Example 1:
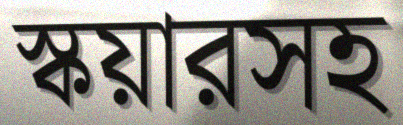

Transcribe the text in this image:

স্কয়ারসহ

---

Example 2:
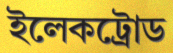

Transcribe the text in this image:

ইলেকট্রোড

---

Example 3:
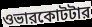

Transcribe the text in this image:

ওভারকোটটার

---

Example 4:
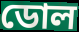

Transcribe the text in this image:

ডোল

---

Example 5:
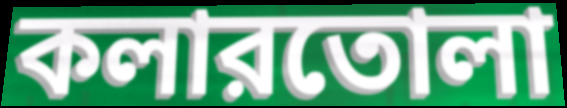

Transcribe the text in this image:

কলারতোলা